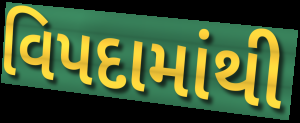
વિપદામાંથી